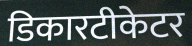
डिकारटीकेटर